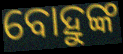
ବୋହୁଙ୍କ